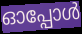
ഓപ്പോൾ